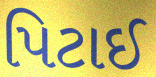
પિટાઈ